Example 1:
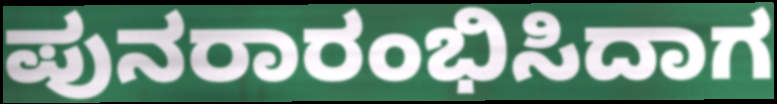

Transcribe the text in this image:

ಪುನರಾರಂಭಿಸಿದಾಗ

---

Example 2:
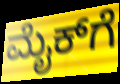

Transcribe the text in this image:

ಮೈಕ್‌ಗೆ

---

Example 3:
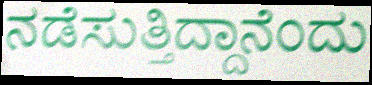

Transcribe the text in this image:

ನಡೆಸುತ್ತಿದ್ದಾನೆಂದು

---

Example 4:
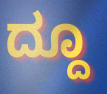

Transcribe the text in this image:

ದ್ದೂ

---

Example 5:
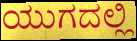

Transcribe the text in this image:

ಯುಗದಲ್ಲಿ